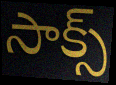
సాక్స్